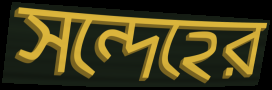
সন্দেহের